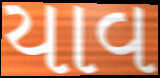
યાવ